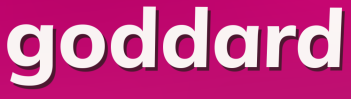
goddard